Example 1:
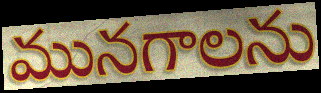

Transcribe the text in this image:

మునగాలను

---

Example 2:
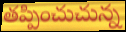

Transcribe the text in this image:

తప్పించుచున్న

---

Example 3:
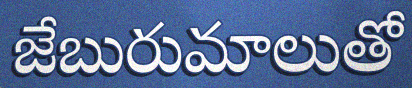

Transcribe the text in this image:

జేబురుమాలుతో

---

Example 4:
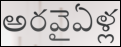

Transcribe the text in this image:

అరవైఏళ్ల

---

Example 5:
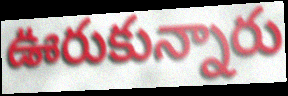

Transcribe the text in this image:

ఊరుకున్నారు